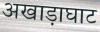
अखाड़ाघाट